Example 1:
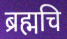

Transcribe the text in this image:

ब्रह्मचि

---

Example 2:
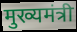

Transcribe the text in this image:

मुख्यमंत्री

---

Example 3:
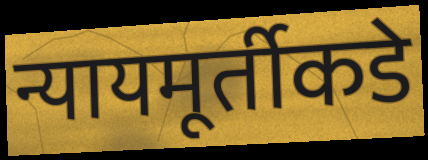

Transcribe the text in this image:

न्यायमूर्तीकडे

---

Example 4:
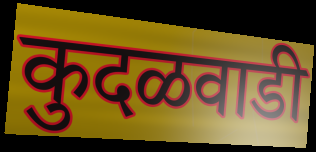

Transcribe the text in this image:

कुदळवाडी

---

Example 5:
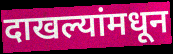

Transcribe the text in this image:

दाखल्यांमधून